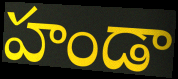
హండా